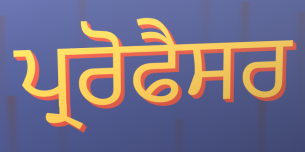
ਪ੍ਰਰੋਫੈਸਰ